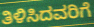
ತಿಳಿಸಿದವರಿಗೆ